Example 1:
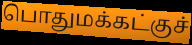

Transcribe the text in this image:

பொதுமக்கட்குச்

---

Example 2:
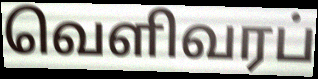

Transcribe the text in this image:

வெளிவரப்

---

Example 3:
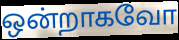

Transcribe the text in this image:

ஒன்றாகவோ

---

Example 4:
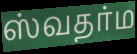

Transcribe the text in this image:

ஸ்வதர்ம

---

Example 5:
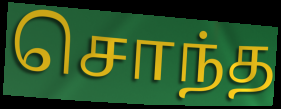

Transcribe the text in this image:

சொந்த